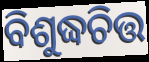
ବିଶୁଦ୍ଧଚିତ୍ତ